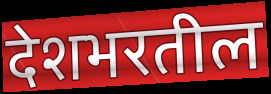
देशभरतील